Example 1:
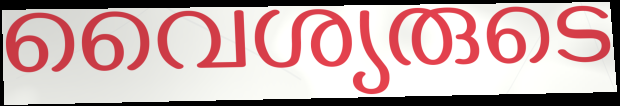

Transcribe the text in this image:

വൈശ്യരുടെ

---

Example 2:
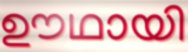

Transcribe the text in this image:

ഊഥായി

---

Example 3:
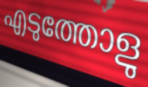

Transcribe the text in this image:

എടുത്തോളു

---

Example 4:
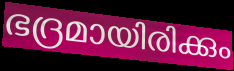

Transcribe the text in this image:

ഭദ്രമായിരിക്കും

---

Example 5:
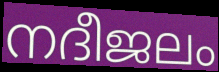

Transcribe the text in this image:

നദീജലം